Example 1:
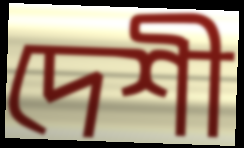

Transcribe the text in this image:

দেশী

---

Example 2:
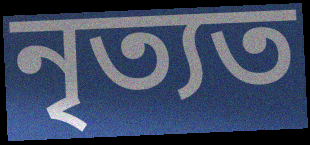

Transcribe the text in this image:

নৃত্যত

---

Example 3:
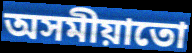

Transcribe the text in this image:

অসমীয়াতো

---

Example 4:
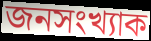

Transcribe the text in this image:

জনসংখ্যাক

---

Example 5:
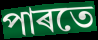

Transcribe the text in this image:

পাৰতে